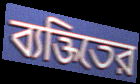
ব্যক্তিতের